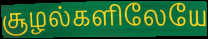
சூழல்களிலேயே